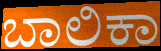
ಬಾಲಿಕಾ